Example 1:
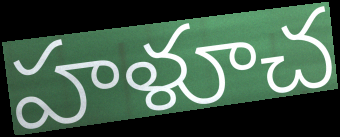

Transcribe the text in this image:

హళూచ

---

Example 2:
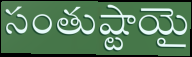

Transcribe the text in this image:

సంతుష్టాయై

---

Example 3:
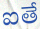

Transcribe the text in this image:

ఐతే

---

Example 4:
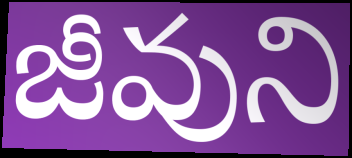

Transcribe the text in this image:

జీవుని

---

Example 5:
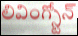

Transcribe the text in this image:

లివింగ్స్టోన్